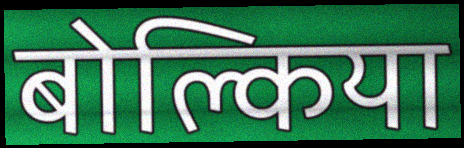
बोल्किया